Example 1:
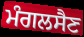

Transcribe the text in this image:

ਮੰਗਲਸੈਣ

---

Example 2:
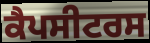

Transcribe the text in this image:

ਕੈਪਸੀਟਰਸ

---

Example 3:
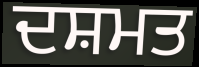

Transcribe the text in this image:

ਦਸ਼ਮਤ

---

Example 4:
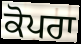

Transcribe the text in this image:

ਕੋਪਰਾ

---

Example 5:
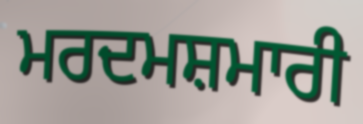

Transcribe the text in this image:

ਮਰਦਮਸ਼ਮਾਰੀ